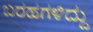
ಬರಹಗಳಿದ್ದು